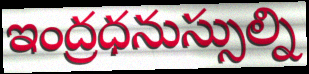
ఇంద్రధనుస్సుల్ని